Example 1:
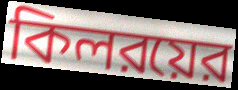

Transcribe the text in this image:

কিলরয়ের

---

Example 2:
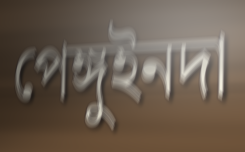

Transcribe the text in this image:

পেঙ্গুইনদা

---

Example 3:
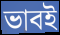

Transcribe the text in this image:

ভাবই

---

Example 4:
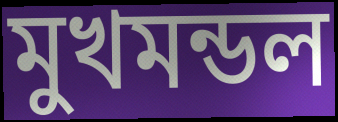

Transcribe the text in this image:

মুখমন্ডল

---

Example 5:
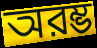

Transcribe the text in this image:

অরম্ভ